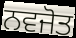
ਨਵਜੋਤ